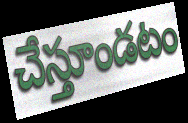
చేస్తూండటం